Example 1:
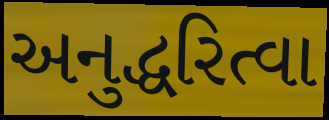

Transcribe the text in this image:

અનુદ્ધરિત્વા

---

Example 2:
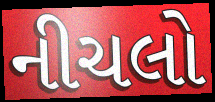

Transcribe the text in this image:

નીચલો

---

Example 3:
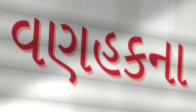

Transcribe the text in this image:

વણહકના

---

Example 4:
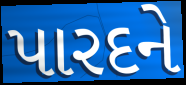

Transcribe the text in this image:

પારદને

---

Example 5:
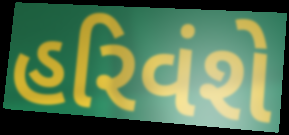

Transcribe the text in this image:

હરિવંશે